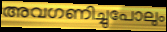
അവഗണിച്ചുപോലും